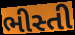
ભીસ્તી